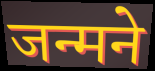
जन्मने